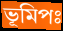
ভূমিপঃ